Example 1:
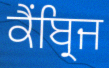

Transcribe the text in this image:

ਕੈਂਬ੍ਰਿਜ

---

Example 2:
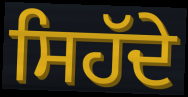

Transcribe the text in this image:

ਸਿਹੱਦੇ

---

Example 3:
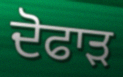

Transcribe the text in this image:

ਦੋਫਾੜ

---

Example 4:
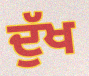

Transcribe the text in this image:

ਦੁੱਖ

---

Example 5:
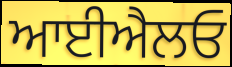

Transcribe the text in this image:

ਆਈਐਲਓ